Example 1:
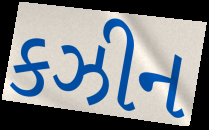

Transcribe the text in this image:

કઝીન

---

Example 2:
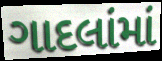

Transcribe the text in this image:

ગાદલાંમાં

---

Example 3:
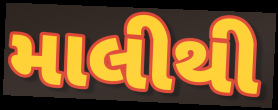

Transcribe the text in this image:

માલીથી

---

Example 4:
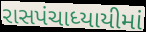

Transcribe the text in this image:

રાસપંચાધ્યાયીમાં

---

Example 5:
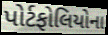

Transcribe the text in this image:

પોર્ટફોલિયોના